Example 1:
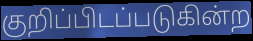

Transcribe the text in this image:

குறிப்பிடப்படுகின்ற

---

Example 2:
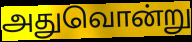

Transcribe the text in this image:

அதுவொன்று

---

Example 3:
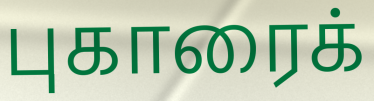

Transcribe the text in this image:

புகாரைக்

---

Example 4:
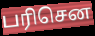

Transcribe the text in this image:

பரிசென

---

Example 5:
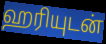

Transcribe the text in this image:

ஹரியுடன்